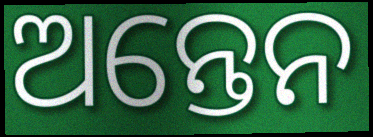
ଅନ୍ତେନ